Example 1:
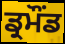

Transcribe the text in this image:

ਡ੍ਰਮੌਂਡ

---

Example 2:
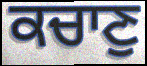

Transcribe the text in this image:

ਕਚਾਣੁ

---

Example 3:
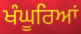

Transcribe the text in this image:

ਖੰਘੂਰਿਆਂ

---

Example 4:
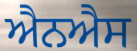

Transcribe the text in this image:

ਐਨਐਸ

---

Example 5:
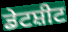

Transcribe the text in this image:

ਡੇਟਸ਼ੀਟ